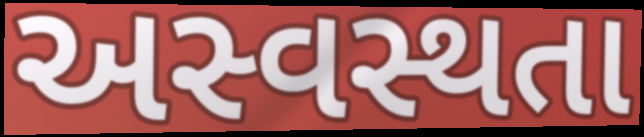
અસ્વસ્થતા